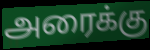
அரைக்கு